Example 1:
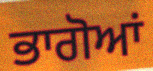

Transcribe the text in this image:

ਭਾਗੋਆਂ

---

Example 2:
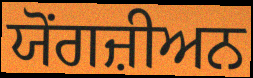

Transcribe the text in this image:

ਯੋਂਗਜ਼ੀਅਨ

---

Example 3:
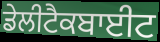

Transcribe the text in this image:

ਡੇਲੀਟੈਕਬਾਈਟ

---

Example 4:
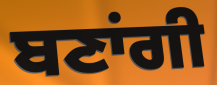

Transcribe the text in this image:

ਬਣਾਂਗੀ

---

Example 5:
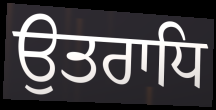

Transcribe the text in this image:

ਉਤਰਾਧਿ